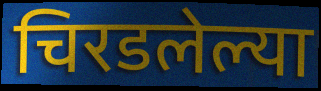
चिरडलेल्या